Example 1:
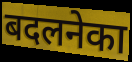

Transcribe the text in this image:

बदलनेका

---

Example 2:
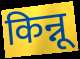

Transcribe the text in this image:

किन्नू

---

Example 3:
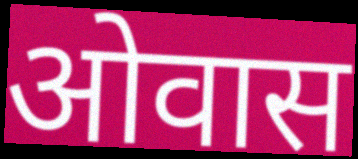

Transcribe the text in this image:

ओवास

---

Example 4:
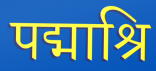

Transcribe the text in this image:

पद्माश्रि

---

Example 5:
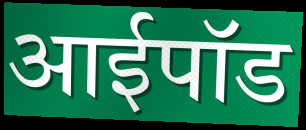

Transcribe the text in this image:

आईपॉड